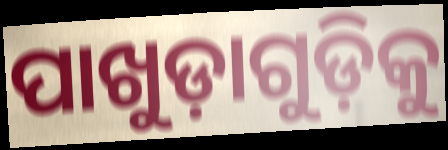
ପାଖୁଡ଼ାଗୁଡ଼ିକୁ